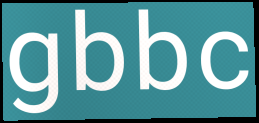
gbbc